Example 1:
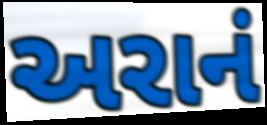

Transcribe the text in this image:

અરાનં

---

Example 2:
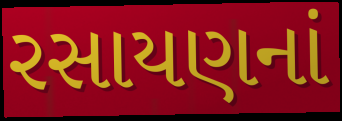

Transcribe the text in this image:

રસાયણનાં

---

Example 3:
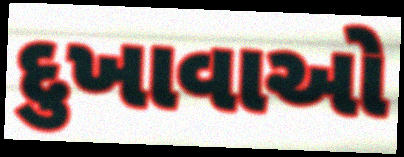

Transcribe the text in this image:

દુખાવાઓ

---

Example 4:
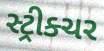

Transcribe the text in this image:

સ્ટ્રીક્ચર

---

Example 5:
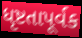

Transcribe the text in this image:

ધૃષ્ટતાપૂર્વક